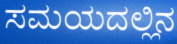
ಸಮಯದಲ್ಲಿನ